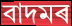
বাদমৰ